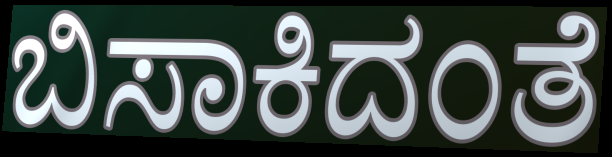
ಬಿಸಾಕಿದಂತೆ